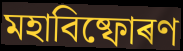
মহাবিষ্ফোৰণ